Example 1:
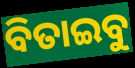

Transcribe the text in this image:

ବିତାଇବୁ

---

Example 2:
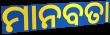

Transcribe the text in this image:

ମାନବତା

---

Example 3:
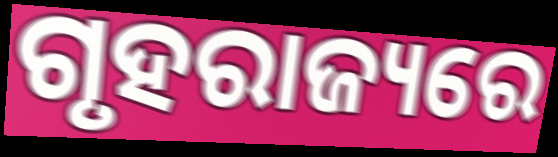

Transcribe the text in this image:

ଗୃହରାଜ୍ୟରେ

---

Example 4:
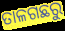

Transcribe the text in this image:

ତାଳଗଛରୁ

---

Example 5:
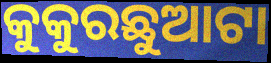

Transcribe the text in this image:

କୁକୁରଛୁଆଟା